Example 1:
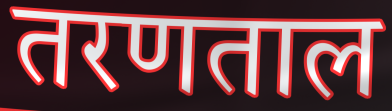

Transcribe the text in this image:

तरणताल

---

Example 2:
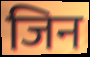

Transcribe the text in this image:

जिन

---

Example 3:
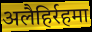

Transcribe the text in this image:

अलैहिर्रहमा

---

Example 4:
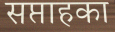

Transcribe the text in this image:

सप्ताहका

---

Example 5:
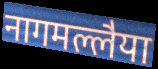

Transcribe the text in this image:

नागमल्लैया